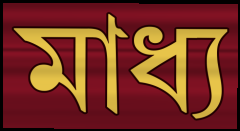
মাধ্য